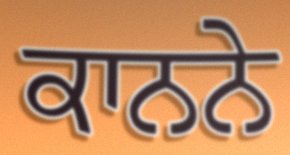
ਕਾਨਨੇ